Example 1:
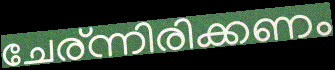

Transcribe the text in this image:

ചേര്ന്നിരിക്കണം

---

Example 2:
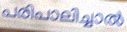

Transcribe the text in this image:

പരിപാലിച്ചാൽ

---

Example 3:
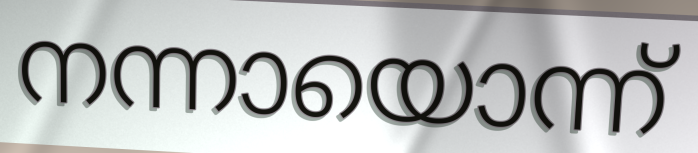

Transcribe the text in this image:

നന്നായൊന്ന്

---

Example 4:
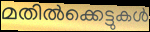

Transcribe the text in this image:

മതിൽക്കെട്ടുകൾ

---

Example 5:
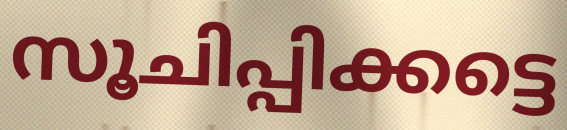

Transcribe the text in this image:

സൂചിപ്പിക്കട്ടെ